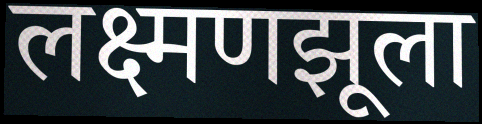
लक्ष्मणझूला